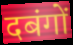
दबंगों